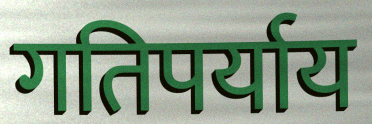
गतिपर्याय